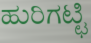
ಹುರಿಗಟ್ಟಿ